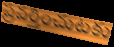
ప్రవర్తించుటకు